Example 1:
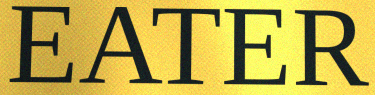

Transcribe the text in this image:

EATER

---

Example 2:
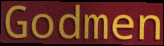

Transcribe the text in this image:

Godmen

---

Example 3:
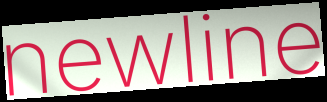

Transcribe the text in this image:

newline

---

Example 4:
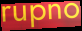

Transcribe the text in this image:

rupno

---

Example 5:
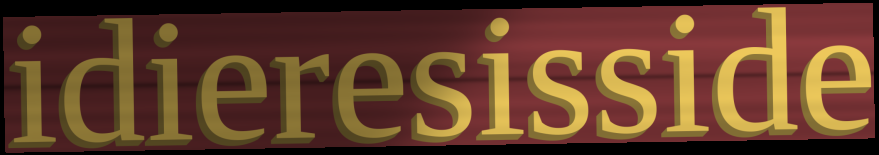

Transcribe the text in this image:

idieresisside